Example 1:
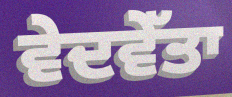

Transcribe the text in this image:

ਵੇਦਵੇੱਤਾ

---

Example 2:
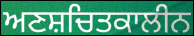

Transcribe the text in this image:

ਅਣਸ਼ਚਿਤਕਾਲੀਨ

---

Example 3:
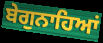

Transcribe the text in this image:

ਬੇਗੁਨਾਹਿਆਂ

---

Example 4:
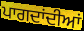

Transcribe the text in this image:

ਪਾਗਦਾਂਦੀਆਂ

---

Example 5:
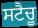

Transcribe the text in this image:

ਸਟੈਚੂ